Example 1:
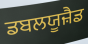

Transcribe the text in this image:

ਡਬਲਯੂਜ਼ੈਡ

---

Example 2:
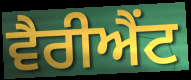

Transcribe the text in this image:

ਵੈਰੀਐਂਟ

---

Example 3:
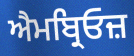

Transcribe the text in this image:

ਐਮਬ੍ਰਿਓਜ਼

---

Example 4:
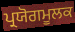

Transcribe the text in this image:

ਪ੍ਰਯੋਗਮੂਲਕ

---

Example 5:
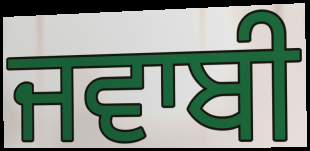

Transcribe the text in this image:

ਜਵਾਬੀ